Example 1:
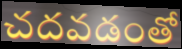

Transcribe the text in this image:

చదవడంతో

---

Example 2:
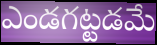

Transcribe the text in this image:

ఎండగట్టడమే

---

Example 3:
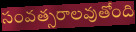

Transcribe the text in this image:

సంవత్సరాలవుతోంది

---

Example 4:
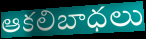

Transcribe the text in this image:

ఆకలిబాధలు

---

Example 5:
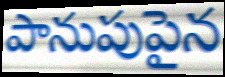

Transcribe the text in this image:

పానుపుపైన